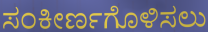
ಸಂಕೀರ್ಣಗೊಳಿಸಲು